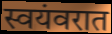
स्वयंवरात